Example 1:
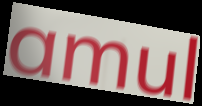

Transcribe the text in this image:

amul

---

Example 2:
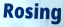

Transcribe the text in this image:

Rosing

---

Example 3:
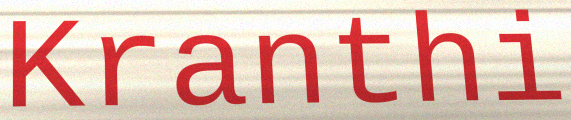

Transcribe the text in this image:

Kranthi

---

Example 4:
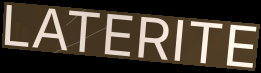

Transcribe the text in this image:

LATERITE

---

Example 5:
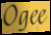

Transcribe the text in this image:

Ogee